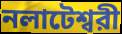
নলাটেশ্বরী